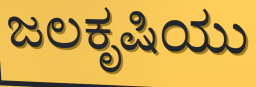
ಜಲಕೃಷಿಯು